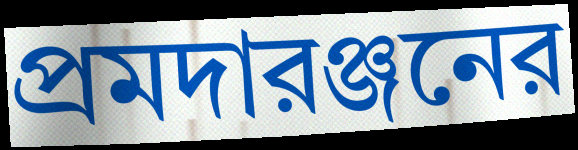
প্রমদারঞ্জনের